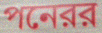
পনেরর